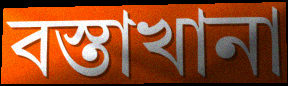
বস্তাখানা